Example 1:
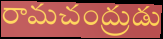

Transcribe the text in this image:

రామచంద్రుడు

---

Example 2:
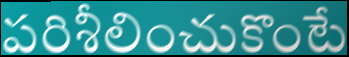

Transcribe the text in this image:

పరిశీలించుకొంటే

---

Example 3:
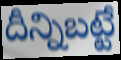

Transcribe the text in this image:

దీన్నిబట్టే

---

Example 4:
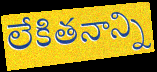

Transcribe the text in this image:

లేకితనాన్ని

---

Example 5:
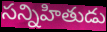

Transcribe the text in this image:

సన్నిహితుడు